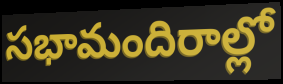
సభామందిరాల్లో